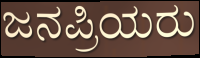
ಜನಪ್ರಿಯರು